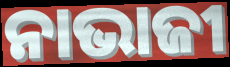
ନାଭାଜୀ